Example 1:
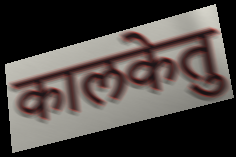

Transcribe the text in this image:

कालकेतु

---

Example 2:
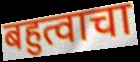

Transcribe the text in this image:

बहुत्वाचा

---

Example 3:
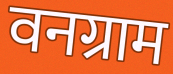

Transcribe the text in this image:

वनग्राम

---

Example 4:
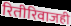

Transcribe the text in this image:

रितीरिवाजही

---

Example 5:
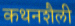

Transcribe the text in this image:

कथनशैली